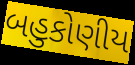
બહુકોણીય